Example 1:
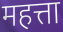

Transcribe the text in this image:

महत्ता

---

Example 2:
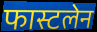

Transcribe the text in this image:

फास्टलेन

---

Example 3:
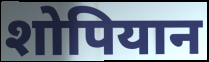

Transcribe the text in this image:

शोपियान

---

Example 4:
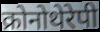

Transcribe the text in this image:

क्रोनोथेरेपी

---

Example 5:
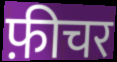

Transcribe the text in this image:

फ़ीचर